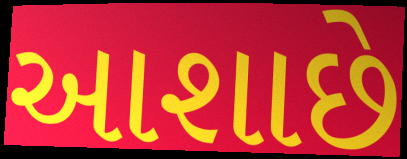
આશાછે